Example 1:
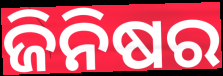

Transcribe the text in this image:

ଜିନିଷର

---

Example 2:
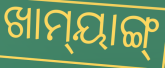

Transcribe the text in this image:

ଖାମ୍‌ୟାଙ୍ଗ୍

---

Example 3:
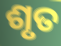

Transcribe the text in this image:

ଶୃତ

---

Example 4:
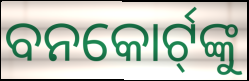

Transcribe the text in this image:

ବନକୋର୍ଟ୍‍ଙ୍କୁ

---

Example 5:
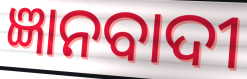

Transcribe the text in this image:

ଜ୍ଞାନବାଦୀ